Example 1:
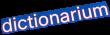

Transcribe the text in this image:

dictionarium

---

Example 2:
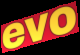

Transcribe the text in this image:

evo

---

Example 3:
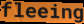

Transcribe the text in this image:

fleeing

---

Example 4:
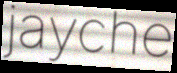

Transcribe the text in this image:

jayche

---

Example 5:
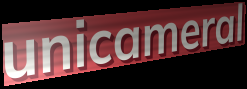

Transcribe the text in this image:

unicameral